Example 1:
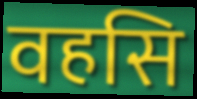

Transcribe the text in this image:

वहसि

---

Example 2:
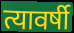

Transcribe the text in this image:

त्यावर्षी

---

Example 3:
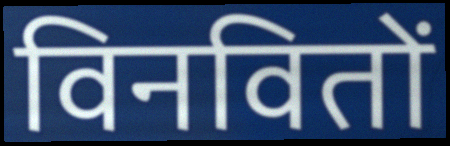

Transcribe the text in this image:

विनवितों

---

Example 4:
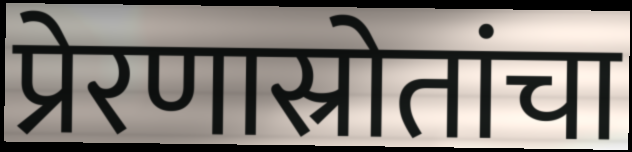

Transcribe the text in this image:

प्रेरणास्रोतांचा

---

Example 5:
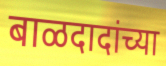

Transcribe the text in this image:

बाळदादांच्या